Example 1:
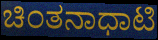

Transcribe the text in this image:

ಚಿಂತನಾಧಾಟಿ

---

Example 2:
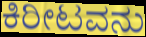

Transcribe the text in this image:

ಕಿರೀಟವನು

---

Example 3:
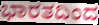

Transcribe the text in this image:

ಭಾರತದಿಂದ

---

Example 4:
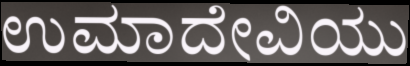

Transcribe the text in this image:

ಉಮಾದೇವಿಯು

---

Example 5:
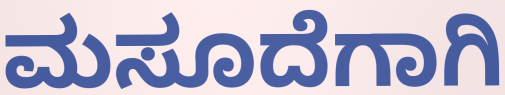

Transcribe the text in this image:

ಮಸೂದೆಗಾಗಿ